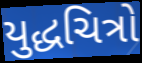
યુદ્ધચિત્રો